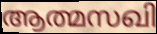
ആത്മസഖി